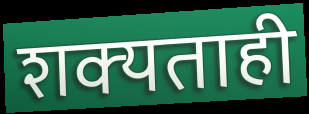
शक्‍यताही